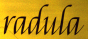
radula